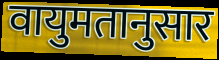
वायुमतानुसार